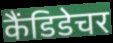
कैंडिडेचर